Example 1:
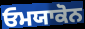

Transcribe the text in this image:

ਓਮਯਾਕੋਨ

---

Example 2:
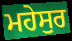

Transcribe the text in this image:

ਮਹੇਸੁਰ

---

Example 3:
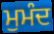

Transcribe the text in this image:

ਮੁਮੰਦ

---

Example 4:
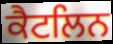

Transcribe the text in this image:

ਕੈਟਲਿਨ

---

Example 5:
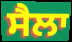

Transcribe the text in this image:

ਸੈਲਾ